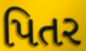
પિતર